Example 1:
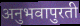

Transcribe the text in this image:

अनुभवापुरती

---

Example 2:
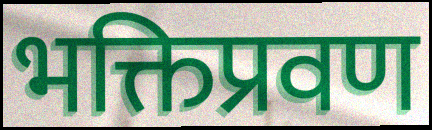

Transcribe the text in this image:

भक्तिप्रवण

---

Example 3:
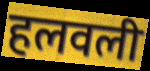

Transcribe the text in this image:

हलवली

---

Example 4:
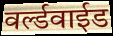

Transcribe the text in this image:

वर्ल्डवाईड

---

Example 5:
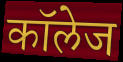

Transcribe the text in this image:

कॉलेज